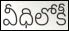
వీధిలోకీ